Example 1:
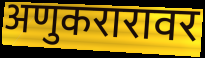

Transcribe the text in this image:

अणुकरारावर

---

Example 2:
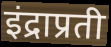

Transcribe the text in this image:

इंद्राप्रती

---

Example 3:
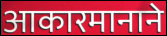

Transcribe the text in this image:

आकारमानाने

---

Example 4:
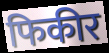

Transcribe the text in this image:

फिकीर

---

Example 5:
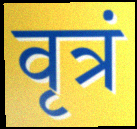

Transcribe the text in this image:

वृत्रं